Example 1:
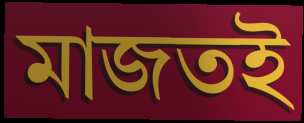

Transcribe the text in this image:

মাজতই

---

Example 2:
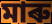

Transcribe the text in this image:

মাৰু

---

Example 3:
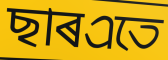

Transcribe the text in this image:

ছাৰএতে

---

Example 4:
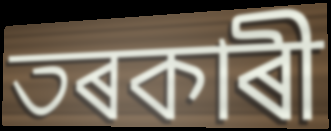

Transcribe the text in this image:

তৰকাৰী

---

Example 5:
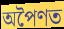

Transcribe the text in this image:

অপৈণত